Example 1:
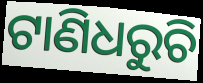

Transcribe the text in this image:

ଟାଣିଧରୁଚି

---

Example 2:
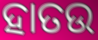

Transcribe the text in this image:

ହାତଉ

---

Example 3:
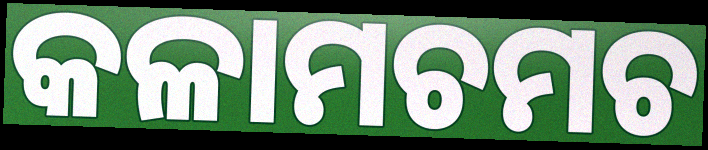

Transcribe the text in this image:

କଳାମଚମଚ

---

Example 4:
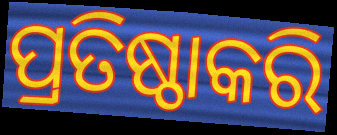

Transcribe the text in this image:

ପ୍ରତିଷ୍ଠାକରି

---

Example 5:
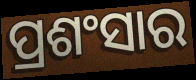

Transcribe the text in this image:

ପ୍ରଶଂସାର